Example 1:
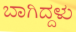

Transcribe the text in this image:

ಬಾಗಿದ್ದಳು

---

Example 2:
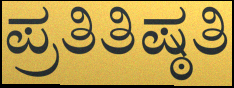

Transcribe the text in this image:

ಪ್ರತಿತಿಷ್ಠತಿ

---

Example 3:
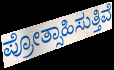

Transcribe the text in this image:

ಪ್ರೋತ್ಸಾಹಿಸುತ್ತಿವೆ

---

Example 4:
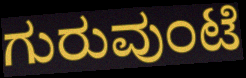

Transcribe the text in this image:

ಗುರುವುಂಟೆ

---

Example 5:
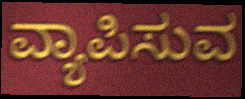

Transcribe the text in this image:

ವ್ಯಾಪಿಸುವ